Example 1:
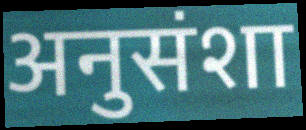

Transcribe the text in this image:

अनुसंशा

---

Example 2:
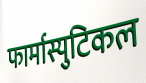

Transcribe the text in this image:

फार्मास्युटिकल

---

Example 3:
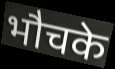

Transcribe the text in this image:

भौचके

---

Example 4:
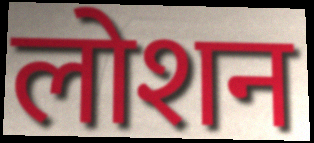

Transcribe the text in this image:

लोशन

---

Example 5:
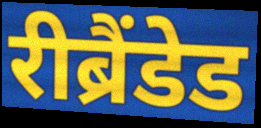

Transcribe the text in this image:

रीब्रैंडेड